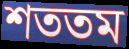
শততম